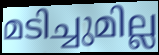
മടിച്ചുമില്ല